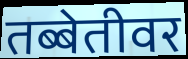
तब्बेतीवर